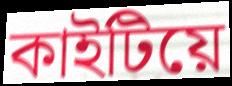
কাইটিয়ে